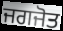
ਜਗਜੋਤ